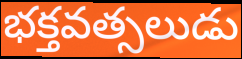
భక్తవత్సలుడు